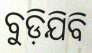
ବୁଡ଼ିଯିବି